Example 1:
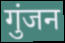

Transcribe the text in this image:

गुंजन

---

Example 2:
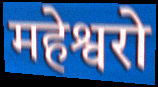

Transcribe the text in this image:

महेश्वरो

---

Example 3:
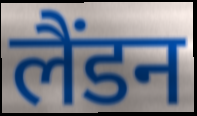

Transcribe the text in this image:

लैंडन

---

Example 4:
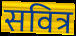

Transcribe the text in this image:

सवित्र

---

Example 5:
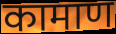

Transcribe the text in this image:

कामाण